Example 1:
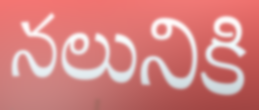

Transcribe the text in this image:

నలునికి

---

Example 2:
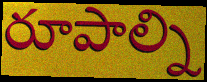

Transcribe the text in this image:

రూపాల్ని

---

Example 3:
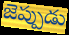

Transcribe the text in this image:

జెప్పుడు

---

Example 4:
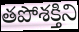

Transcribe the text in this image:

తపోశక్తిని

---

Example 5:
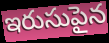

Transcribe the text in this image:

ఇరుసుపైన